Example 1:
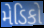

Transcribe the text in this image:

મેડિકો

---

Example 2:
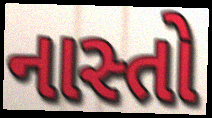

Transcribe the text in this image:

નાસ્તો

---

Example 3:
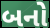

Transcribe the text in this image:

બનો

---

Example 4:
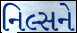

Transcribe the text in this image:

નિલ્સને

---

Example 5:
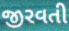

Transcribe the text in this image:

જીરવતી